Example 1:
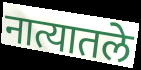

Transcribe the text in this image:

नात्यातले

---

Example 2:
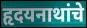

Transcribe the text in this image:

हृदयनाथांचे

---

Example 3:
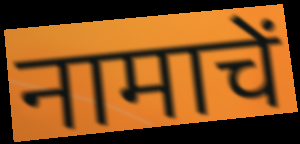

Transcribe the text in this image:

नामाचें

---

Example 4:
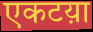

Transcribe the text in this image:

एकटय़ा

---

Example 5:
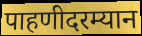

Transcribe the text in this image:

पाहणीदरम्यान